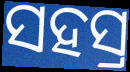
ସହସ୍ର